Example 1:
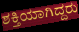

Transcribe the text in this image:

ಶಕ್ತಿಯಾಗಿದ್ದರು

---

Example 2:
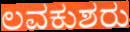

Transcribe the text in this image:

ಲವಕುಶರು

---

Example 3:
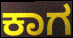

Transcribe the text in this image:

ಕಾಗ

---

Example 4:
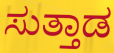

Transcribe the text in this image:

ಸುತ್ತಾಡ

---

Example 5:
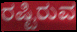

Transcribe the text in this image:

ರಷ್ಟಿರುವ